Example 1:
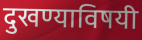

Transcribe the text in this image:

दुखण्याविषयी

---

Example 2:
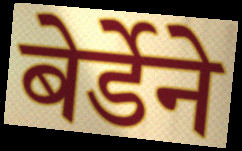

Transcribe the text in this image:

बेर्डेने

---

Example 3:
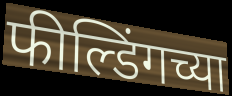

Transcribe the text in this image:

फील्डिंगच्या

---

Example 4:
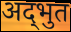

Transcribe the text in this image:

अद्‍भुत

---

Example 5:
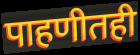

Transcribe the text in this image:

पाहणीतही